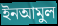
ইনআমুল